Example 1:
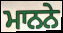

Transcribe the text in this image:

ਮਾਨਨੇ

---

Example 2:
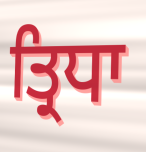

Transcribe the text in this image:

ਤ੍ਰਿਧਾ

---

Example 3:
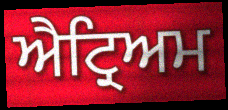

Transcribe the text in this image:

ਐਟ੍ਰਿਅਮ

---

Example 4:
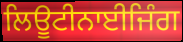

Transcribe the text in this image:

ਲਿਊਟੀਨਾਈਜਿੰਗ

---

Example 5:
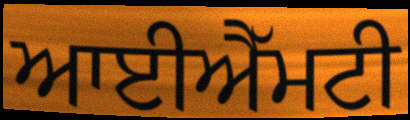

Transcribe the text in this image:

ਆਈਐੱਮਟੀ